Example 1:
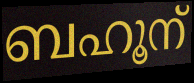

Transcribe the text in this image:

ബഹൂന്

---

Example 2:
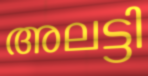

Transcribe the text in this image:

അലട്ടി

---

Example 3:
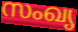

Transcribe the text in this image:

സംഖ്യ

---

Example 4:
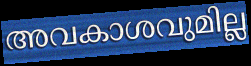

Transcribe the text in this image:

അവകാശവുമില്ല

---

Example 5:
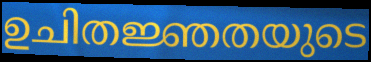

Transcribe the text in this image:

ഉചിതജ്ഞതയുടെ